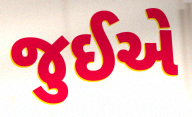
જુઈએ